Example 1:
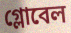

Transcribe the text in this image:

গ্লোবেল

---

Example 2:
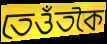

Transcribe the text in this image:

তেওঁতকৈ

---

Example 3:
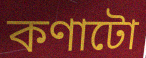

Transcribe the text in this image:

কণাটো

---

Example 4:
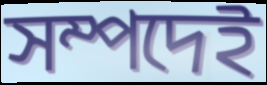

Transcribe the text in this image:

সম্পদেই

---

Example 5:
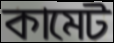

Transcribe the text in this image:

কামেট